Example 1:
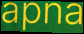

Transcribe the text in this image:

apna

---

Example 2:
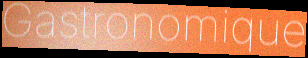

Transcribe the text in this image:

Gastronomique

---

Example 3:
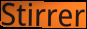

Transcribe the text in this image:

Stirrer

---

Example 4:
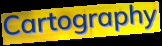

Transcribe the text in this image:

Cartography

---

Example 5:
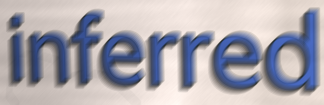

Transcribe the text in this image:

inferred